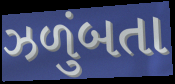
ઝળુંબતા